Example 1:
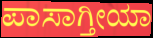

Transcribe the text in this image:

ಪಾಸಾಗ್ತೀಯಾ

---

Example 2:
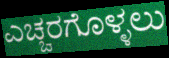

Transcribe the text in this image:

ಎಚ್ಚರಗೊಳ್ಳಲು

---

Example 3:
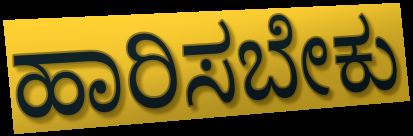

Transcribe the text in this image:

ಹಾರಿಸಬೇಕು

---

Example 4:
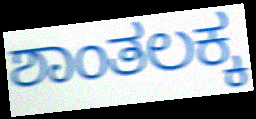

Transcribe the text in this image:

ಶಾಂತಲಕ್ಕ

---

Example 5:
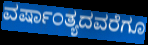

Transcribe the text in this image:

ವರ್ಷಾಂತ್ಯದವರೆಗೂ